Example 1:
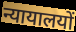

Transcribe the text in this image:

न्यायालयों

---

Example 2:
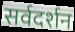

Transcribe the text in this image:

सर्वदर्शन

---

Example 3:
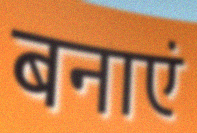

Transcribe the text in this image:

बनाएं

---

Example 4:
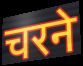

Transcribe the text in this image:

चरने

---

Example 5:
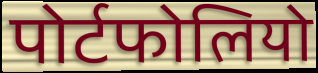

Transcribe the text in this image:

पोर्टफोलियो